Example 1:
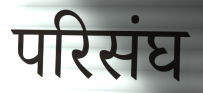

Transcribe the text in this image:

परिसंघ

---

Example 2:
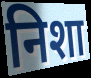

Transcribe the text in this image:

निशा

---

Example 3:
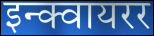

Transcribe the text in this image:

इन्क्वायरर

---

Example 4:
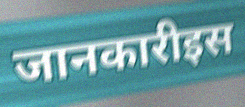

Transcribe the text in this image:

जानकारीइस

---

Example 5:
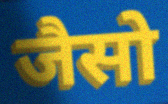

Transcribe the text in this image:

जैसो